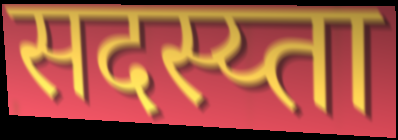
सदस्य्ता